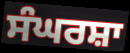
ਸੰਘਰਸ਼ਾ